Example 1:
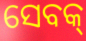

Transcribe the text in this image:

ସେବକ୍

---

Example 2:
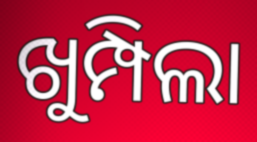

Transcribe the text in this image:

ଖୁମ୍ପିଲା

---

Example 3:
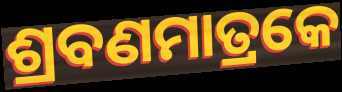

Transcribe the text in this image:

ଶ୍ରବଣମାତ୍ରକେ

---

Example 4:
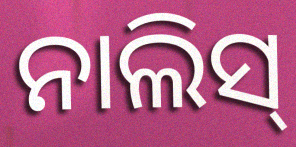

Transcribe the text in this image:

ନାଲିସ୍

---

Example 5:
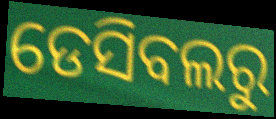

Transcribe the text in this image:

ଡେସିବଲରୁ